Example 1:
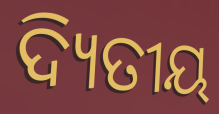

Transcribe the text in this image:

ଦ୍ଯିତୀୟ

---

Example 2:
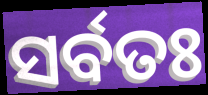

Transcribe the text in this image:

ସର୍ବତଃ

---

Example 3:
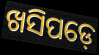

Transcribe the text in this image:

ଖସିପଡ଼େ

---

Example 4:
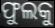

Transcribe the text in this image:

ଫୁଲକୁ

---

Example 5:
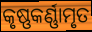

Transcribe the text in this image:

କୃଷ୍ଣକର୍ଣ୍ଣାମୃତ